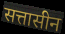
सत्तासीन